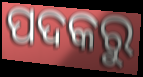
ପଦକରୁ